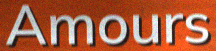
Amours